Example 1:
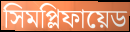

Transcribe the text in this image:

সিমপ্লিফায়েড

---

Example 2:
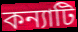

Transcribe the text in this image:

কন্যাটি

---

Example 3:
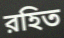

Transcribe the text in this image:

রহিত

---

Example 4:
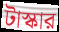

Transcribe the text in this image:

টাস্কার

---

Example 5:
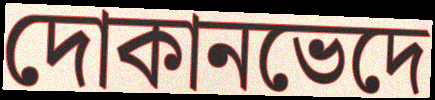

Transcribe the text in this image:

দোকানভেদে